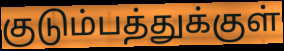
குடும்பத்துக்குள்